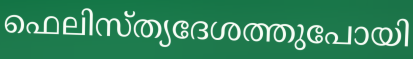
ഫെലിസ്ത്യദേശത്തുപോയി